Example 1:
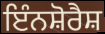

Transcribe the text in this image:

ਇੰਨਸ਼ੋਰੈਸ਼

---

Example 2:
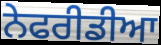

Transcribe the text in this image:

ਨੇਫਰੀਡੀਆ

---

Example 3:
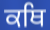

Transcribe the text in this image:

ਕਥਿ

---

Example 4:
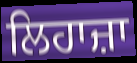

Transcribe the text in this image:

ਲਿਹਾਜ਼ਾ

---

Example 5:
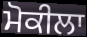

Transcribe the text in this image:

ਮੋਕੀਲਾ